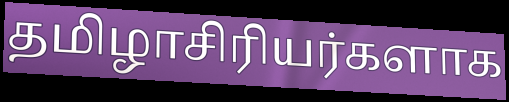
தமிழாசிரியர்களாக